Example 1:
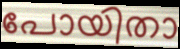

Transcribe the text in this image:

പോയിതാ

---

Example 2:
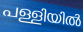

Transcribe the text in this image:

പള്ളിയിൽ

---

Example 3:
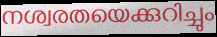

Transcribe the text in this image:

നശ്വരതയെക്കുറിച്ചും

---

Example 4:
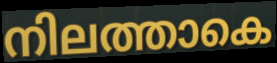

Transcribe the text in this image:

നിലത്താകെ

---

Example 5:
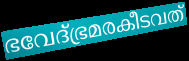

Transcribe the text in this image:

ഭവേദ്ഭ്രമരകീടവത്